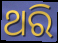
ଥରି